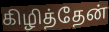
கிழித்தேன்